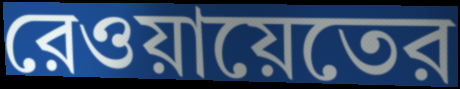
রেওয়ায়েতের